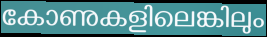
കോണുകളിലെങ്കിലും